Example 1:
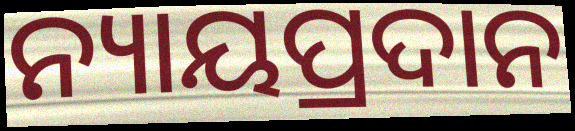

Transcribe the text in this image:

ନ୍ୟାୟପ୍ରଦାନ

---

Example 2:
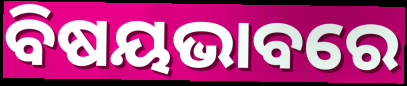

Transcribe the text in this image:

ବିଷୟଭାବରେ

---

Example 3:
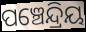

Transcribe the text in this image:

ପଞ୍ଚେନ୍ଦ୍ରିୟ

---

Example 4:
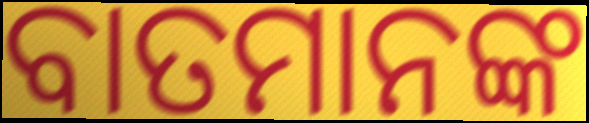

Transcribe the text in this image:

ବାତମାନଙ୍କ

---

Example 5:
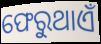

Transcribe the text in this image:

ଫେରୁଥାଏଁ